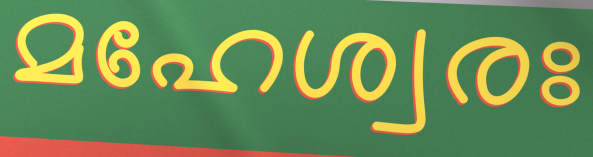
മഹേശ്വരഃ